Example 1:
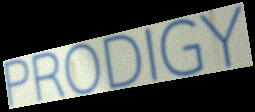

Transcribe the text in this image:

PRODIGY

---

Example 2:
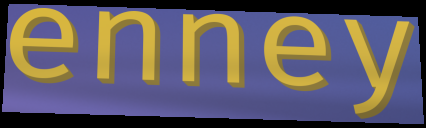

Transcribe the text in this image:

enney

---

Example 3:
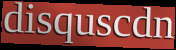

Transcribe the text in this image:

disquscdn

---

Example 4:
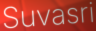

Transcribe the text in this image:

Suvasri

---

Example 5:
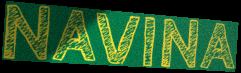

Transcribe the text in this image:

NAVINA